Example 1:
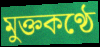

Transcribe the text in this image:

মুক্তকণ্ঠে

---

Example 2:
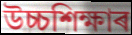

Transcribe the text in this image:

উচ্চশিক্ষাৰ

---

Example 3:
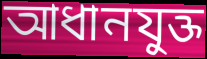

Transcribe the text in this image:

আধানযুক্ত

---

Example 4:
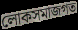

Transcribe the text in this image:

লোকসমাজগত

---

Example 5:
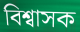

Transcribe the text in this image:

বিশ্বাসক